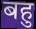
बहु